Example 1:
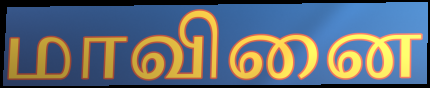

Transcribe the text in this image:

மாவினை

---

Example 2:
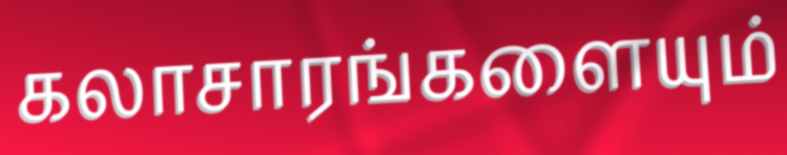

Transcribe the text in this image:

கலாசாரங்களையும்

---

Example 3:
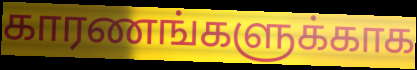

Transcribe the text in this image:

காரணங்களுக்காக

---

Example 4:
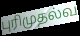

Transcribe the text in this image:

புரிமுதல்வ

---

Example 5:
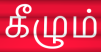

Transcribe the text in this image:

கீழும்